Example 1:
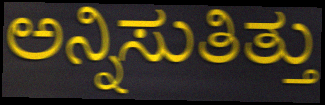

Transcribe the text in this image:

ಅನ್ನಿಸುತಿತ್ತು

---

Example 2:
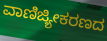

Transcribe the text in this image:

ವಾಣಿಜ್ಯೀಕರಣದ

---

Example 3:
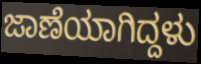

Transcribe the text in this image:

ಜಾಣೆಯಾಗಿದ್ದಳು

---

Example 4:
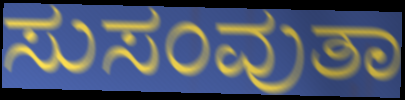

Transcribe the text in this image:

ಸುಸಂವುತಾ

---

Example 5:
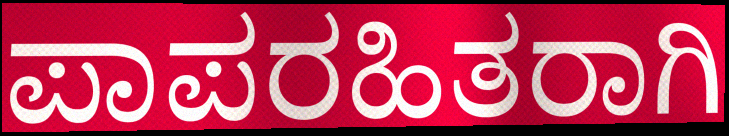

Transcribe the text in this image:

ಪಾಪರಹಿತರಾಗಿ